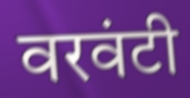
वरवंटी